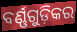
ବର୍ଣ୍ଣଗୁଡ଼ିକର